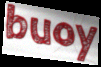
buoy